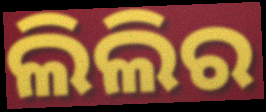
ଲିଲିର